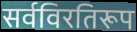
सर्वविरतिरूप